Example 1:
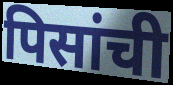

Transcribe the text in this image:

पिसांची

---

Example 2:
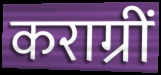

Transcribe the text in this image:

कराग्रीं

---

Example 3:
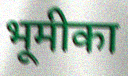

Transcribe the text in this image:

भूमीका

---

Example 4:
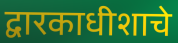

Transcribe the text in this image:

द्वारकाधीशाचे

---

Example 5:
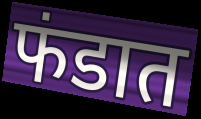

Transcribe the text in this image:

फंडात